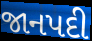
જાનપદી